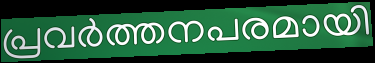
പ്രവർത്തനപരമായി